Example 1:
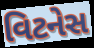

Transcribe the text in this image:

વિટનેસ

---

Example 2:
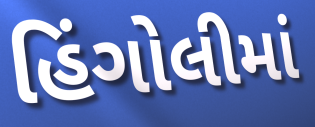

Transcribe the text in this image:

હિંગોલીમાં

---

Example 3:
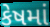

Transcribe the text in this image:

કેષમાં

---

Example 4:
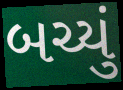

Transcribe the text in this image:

બચ્યું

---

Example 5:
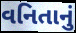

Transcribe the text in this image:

વનિતાનું